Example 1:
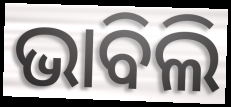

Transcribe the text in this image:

ଭାବିଲି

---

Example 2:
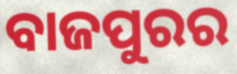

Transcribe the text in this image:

ବାଜପୁରର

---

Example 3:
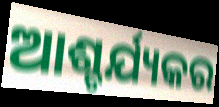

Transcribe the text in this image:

ଆଶ୍ଚର୍ଯ୍ୟକର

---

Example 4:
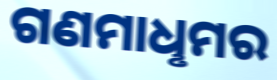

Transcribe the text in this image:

ଗଣମାଧୢମର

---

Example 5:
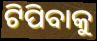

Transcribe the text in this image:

ଟିପିବାକୁ